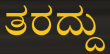
ತರದ್ದು